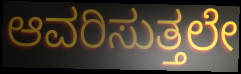
ಆವರಿಸುತ್ತಲೇ